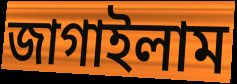
জাগাইলাম